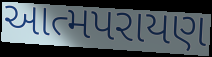
આત્મપરાયણ